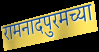
रामनादपुरमच्या